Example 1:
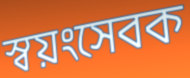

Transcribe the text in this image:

স্বয়ংসেবক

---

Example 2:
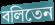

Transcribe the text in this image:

বলিতেন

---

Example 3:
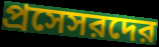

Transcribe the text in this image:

প্রসেসরদের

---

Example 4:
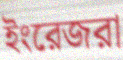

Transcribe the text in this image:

ইংরেজরা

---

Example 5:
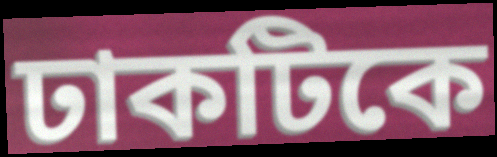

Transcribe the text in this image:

ঢাকটিকে